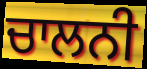
ਚਾਲਨੀ